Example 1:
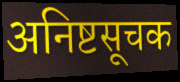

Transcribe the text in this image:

अनिष्टसूचक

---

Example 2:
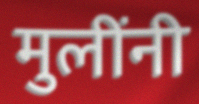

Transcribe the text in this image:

मुलींनी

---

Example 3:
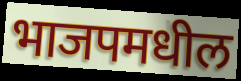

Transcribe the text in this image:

भाजपमधील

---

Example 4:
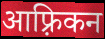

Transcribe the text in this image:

आफ़्रिकन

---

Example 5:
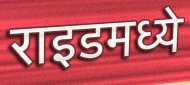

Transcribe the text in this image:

राइडमध्ये